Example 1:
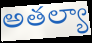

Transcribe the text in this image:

అతల్యా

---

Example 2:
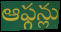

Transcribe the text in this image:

ఆఫ్గన్లు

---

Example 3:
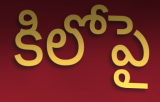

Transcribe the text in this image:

కిలోపై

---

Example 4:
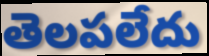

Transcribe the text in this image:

తెలపలేదు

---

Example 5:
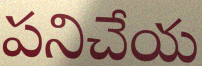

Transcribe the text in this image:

పనిచేయ